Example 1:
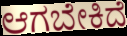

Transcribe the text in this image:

ಆಗಬೇಕಿದೆ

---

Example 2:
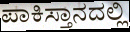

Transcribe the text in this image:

ಪಾಕಿಸ್ತಾನದಲ್ಲಿ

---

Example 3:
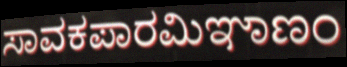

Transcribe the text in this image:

ಸಾವಕಪಾರಮಿಞಾಣಂ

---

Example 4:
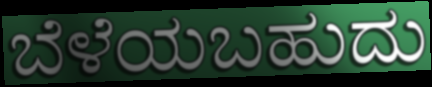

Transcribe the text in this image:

ಬೆಳೆಯಬಹುದು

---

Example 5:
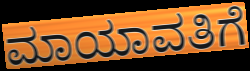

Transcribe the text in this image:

ಮಾಯಾವತಿಗೆ